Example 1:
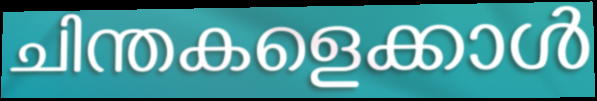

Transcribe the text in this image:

ചിന്തകളെക്കാൾ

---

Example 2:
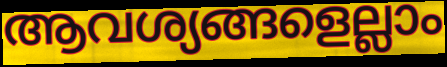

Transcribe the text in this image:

ആവശ്യങ്ങളെല്ലാം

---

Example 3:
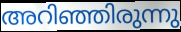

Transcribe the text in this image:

അറിഞ്ഞിരുന്നു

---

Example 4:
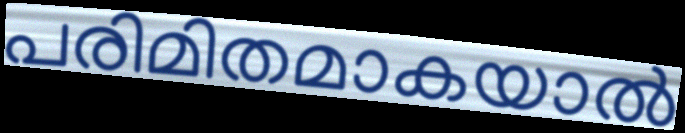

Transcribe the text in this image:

പരിമിതമാകയാൽ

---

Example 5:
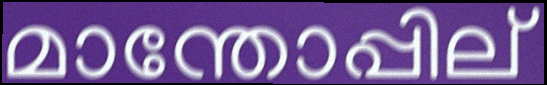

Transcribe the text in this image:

മാന്തോപ്പില്